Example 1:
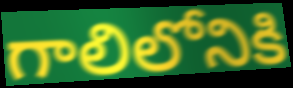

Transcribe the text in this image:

గాలిలోనికి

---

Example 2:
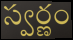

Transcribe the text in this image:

స్వర్ణం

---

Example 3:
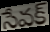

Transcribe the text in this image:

సేవక్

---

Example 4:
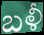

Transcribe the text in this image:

బళీ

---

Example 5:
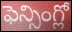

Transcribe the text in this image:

ఫెన్సింగ్లో